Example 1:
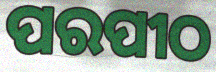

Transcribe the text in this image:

ପରପୀଠ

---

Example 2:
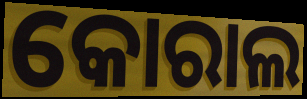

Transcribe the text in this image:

କୋରାଲ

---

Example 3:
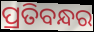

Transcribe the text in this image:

ପ୍ରତିବନ୍ଧର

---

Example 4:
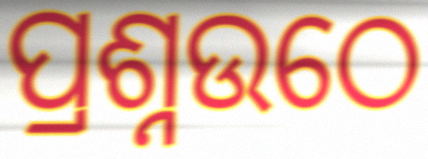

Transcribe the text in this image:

ପ୍ରଶ୍ନଉଠେ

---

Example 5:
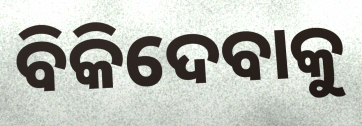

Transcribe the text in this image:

ବିକିଦେବାକୁ